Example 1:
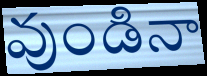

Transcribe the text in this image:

వుండినా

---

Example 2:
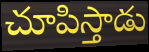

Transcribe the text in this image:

చూపిస్తాడు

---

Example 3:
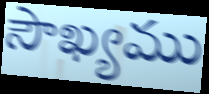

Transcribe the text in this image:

సౌఖ్యము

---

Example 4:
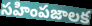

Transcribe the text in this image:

సహింపజాలక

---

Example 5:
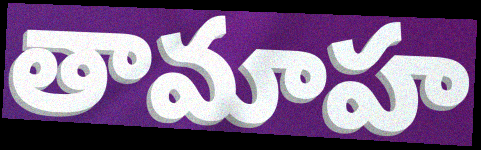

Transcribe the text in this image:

తామాహ